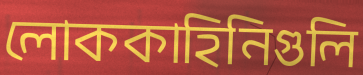
লোককাহিনিগুলি